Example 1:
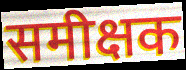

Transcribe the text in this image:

समीक्षक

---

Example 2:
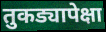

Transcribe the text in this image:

तुकड्यापेक्षा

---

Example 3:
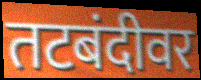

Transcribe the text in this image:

तटबंदीवर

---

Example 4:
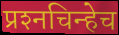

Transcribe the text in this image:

प्रश्नचिन्हेच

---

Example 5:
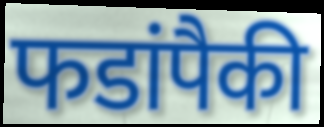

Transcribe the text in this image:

फडांपैकी